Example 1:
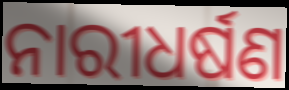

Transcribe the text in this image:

ନାରୀଧର୍ଷଣ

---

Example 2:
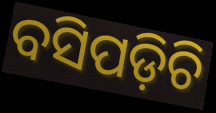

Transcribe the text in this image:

ବସିପଡ଼ିଚି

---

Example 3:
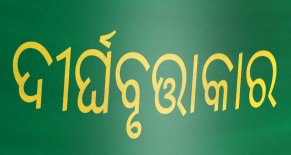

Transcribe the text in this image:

ଦୀର୍ଘବୃତ୍ତାକାର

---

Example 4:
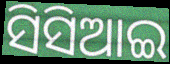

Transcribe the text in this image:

ସିସିଆଇ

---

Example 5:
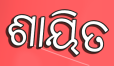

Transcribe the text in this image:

ଶାୟିତ